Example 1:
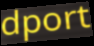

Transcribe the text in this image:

dport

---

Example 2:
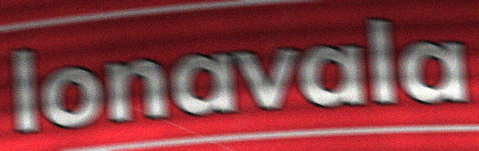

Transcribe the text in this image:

lonavala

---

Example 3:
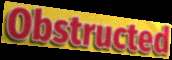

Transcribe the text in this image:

Obstructed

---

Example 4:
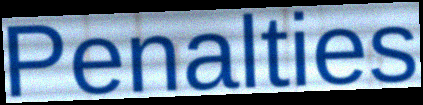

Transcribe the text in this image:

Penalties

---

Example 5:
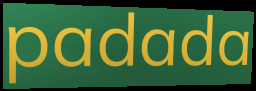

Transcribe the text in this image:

padada